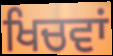
ਖਿਚਵਾਂ